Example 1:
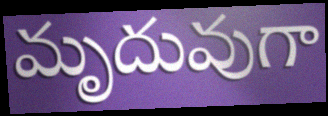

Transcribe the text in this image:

మృదువుగా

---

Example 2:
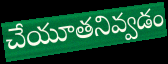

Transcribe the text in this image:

చేయూతనివ్వడం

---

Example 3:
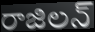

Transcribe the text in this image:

రాజిలన్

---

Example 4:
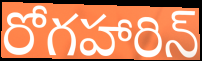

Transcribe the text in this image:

రోగహారిన్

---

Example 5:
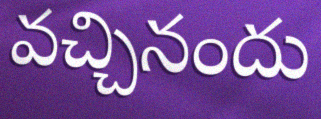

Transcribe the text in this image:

వచ్చినందు